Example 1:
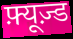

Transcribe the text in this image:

फ़्यूज़्ड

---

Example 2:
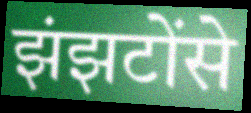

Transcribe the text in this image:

झंझटोंसे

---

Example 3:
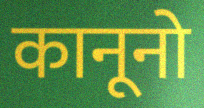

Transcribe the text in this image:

कानूनो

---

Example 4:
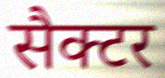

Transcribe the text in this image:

सैक्टर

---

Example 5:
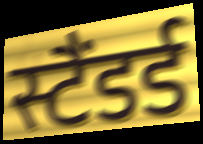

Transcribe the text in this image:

स्‍टैंडर्ड